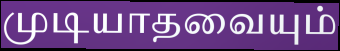
முடியாதவையும்